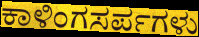
ಕಾಳಿಂಗಸರ್ಪಗಳು